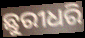
ଛୁରୀଧରି